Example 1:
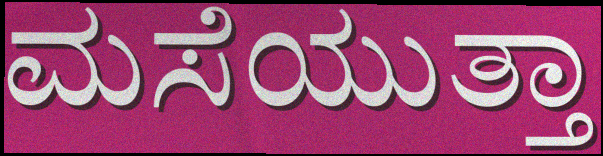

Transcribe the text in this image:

ಮಸೆಯುತ್ತಾ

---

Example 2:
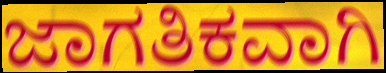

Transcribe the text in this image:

ಜಾಗತಿಕವಾಗಿ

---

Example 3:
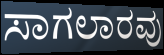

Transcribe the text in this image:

ಸಾಗಲಾರವು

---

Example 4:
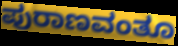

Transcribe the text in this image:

ಪುರಾಣವಂತೂ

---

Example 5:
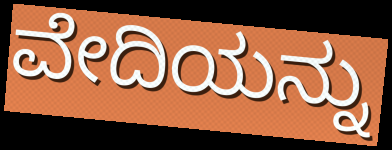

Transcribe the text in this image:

ವೇದಿಯನ್ನು